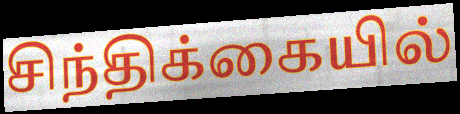
சிந்திக்கையில்